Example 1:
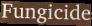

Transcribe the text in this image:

Fungicide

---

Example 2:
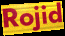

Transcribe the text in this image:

Rojid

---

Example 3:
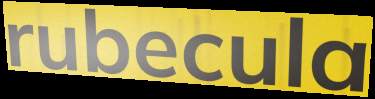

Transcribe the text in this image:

rubecula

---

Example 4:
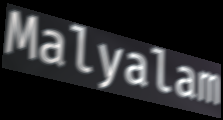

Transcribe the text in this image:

Malyalam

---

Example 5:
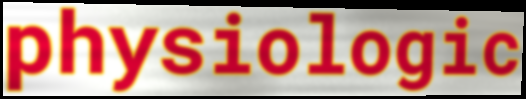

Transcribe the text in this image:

physiologic